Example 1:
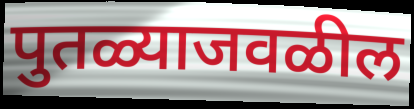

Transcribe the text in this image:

पुतळ्याजवळील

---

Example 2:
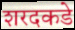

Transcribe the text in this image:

शरदकडे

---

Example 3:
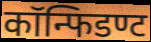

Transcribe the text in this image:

कॉन्फिडण्ट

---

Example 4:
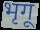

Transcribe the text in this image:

भृगू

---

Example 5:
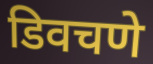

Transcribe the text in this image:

डिवचणे